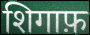
शिगाफ़